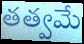
తత్వమే